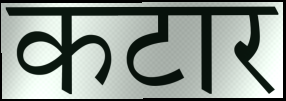
कटार